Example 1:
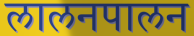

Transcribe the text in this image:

लालनपालन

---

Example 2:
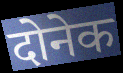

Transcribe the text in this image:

दोनेक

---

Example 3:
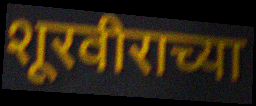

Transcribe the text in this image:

शूरवीराच्या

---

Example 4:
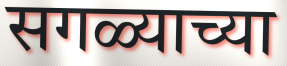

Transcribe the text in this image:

सगळ्याच्या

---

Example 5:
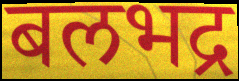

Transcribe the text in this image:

बलभद्र